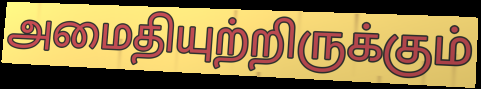
அமைதியுற்றிருக்கும்